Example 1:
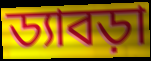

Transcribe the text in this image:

ড্যাবড়া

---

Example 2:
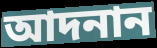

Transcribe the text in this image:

আদনান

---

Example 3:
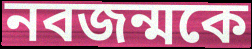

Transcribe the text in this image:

নবজন্মকে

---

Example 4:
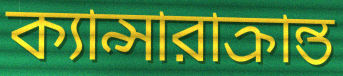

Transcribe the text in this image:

ক্যান্সারাক্রান্ত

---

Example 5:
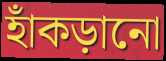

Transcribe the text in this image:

হাঁকড়ানো